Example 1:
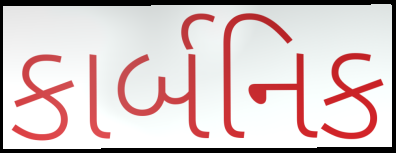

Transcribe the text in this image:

કાર્બનિક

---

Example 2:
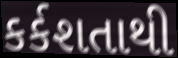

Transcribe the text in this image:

કર્કશતાથી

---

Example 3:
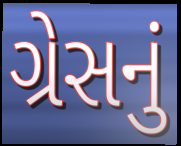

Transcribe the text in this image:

ગ્રેસનું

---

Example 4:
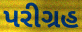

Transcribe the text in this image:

પરીગ્રહ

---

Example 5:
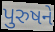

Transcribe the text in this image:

પુરુષને